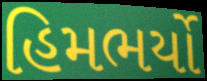
હિમભર્યો